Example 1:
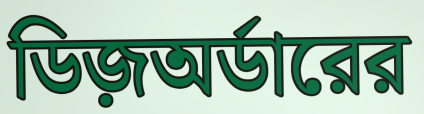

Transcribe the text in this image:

ডিজ়অর্ডারের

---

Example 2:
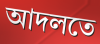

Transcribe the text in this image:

আদলতে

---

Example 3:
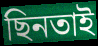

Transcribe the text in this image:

ছিনতাই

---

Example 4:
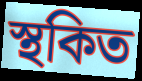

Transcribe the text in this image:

স্থকিত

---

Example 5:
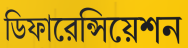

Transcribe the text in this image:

ডিফারেন্সিয়েশন